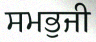
ਸਮਭੁਜੀ